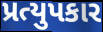
પ્રત્યુપકાર